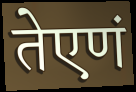
तेएणं